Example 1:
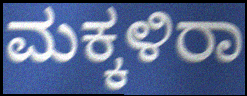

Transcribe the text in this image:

ಮಕ್ಕಳಿರಾ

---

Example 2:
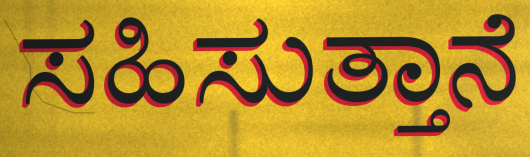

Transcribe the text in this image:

ಸಹಿಸುತ್ತಾನೆ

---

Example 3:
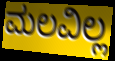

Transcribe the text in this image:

ಮಲವಿಲ್ಲ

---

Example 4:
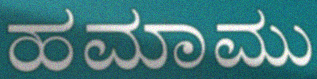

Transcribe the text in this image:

ಹಮಾಮು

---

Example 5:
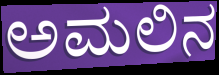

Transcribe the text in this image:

ಅಮಲಿನ